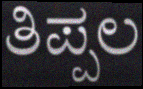
ತಿಪ್ಪಲ